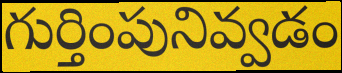
గుర్తింపునివ్వడం